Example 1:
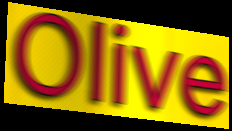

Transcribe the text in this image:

Olive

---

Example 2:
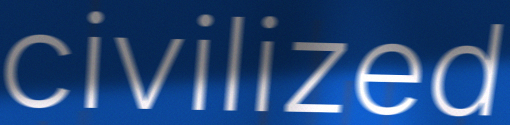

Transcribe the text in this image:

civilized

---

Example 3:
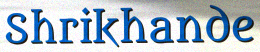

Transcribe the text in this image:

Shrikhande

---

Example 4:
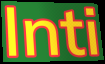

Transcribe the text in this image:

Inti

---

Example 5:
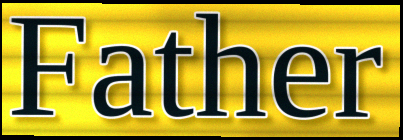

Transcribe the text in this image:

Father